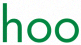
hoo